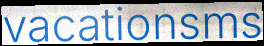
vacationsms